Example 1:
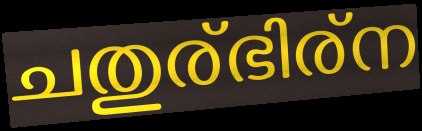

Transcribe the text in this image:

ചതുര്ഭിര്ന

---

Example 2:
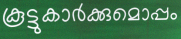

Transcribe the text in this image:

കൂട്ടുകാർക്കുമൊപ്പം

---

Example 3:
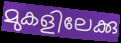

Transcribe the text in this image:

മുകളിലേക്കു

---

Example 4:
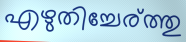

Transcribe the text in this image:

എഴുതിച്ചേര്ത്തു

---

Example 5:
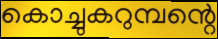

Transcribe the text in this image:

കൊച്ചുകറുമ്പന്റെ